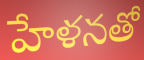
హేళనతో